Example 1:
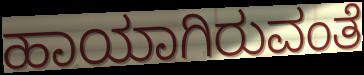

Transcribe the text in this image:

ಹಾಯಾಗಿರುವಂತೆ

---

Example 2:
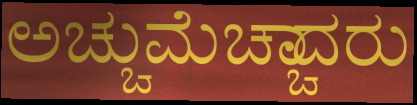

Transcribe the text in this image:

ಅಚ್ಚುಮೆಚ್ಚಾದರು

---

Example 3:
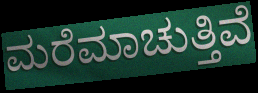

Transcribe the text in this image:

ಮರೆಮಾಚುತ್ತಿವೆ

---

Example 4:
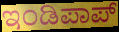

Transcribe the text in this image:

ಇಂಡಿಪಾಪ್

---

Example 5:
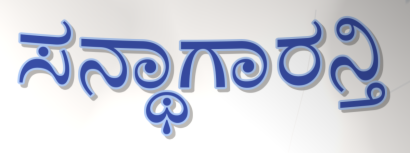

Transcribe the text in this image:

ಸನ್ಥಾಗಾರನ್ತಿ